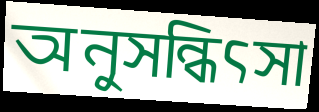
অনুসন্ধিৎসা